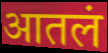
आतलं